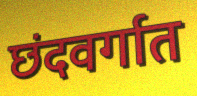
छंदवर्गात